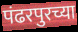
पंढरपुरच्या